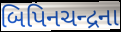
બિપિનચન્દ્રના